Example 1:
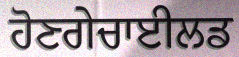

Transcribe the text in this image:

ਹੋਣਗੇਚਾਈਲਡ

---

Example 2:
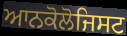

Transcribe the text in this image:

ਆਨਕੋਲੋਜਿਸਟ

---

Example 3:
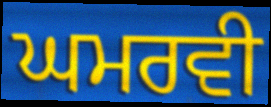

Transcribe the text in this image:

ਘਮਰਵੀ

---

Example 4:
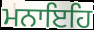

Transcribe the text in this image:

ਮਨਾਇਹਿ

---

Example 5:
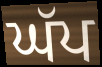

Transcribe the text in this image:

ਘੱਪ